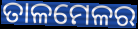
ତାଳମେଳର